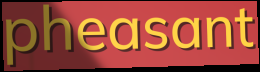
pheasant